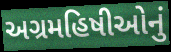
અગ્રમહિષીઓનું